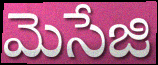
మెసేజి